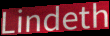
Lindeth